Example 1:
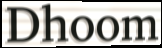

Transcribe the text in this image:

Dhoom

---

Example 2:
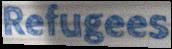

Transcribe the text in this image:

Refugees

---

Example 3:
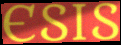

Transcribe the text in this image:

ESIS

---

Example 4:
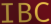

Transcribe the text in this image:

IBC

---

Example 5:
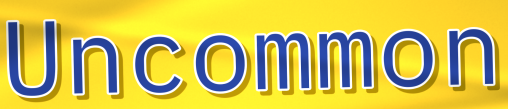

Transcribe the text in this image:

Uncommon